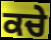
ਕਚੇ